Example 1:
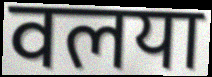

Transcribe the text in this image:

वलया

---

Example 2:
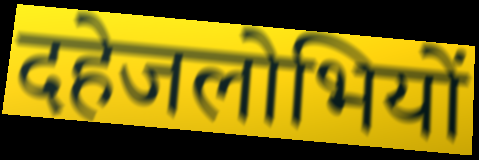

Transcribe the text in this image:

दहेजलोभियों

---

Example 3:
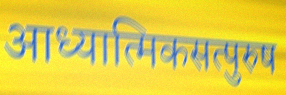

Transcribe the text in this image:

आध्यात्मिकसत्पुरुष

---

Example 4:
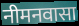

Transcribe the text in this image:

नीमनवासा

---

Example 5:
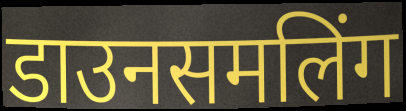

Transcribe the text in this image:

डाउनसमलिंग